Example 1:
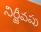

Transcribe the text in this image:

నిర్జీవపు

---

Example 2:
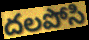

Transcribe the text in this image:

దలపోసి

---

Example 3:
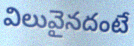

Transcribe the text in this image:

విలువైనదంటే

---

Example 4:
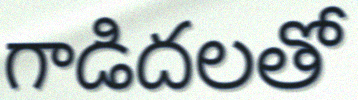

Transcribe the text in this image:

గాడిదలతో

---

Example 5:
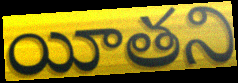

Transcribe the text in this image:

యీతని